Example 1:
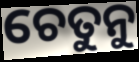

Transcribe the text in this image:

ଚେତୁନୁ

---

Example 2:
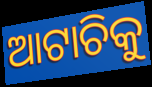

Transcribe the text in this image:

ଆଟାଚିକୁ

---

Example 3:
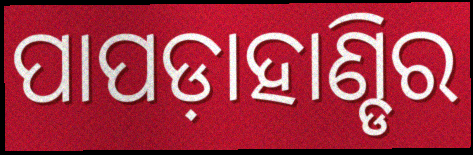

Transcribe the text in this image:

ପାପଡ଼ାହାଣ୍ଡିର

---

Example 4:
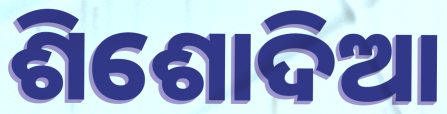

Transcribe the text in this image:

ଶିଶୋଦିଆ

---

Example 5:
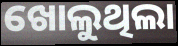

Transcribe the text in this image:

ଖୋଲୁଥିଲା